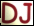
DJ